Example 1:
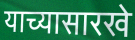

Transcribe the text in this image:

याच्यासारखे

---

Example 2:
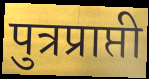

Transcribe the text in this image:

पुत्रप्राप्ती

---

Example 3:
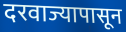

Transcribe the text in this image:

दरवाज्यापासून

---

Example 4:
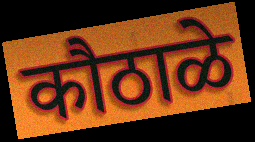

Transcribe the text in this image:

कौठाळे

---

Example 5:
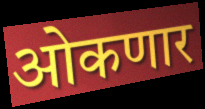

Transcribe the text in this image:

ओकणार